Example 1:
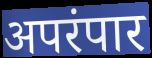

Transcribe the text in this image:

अपरंपार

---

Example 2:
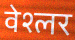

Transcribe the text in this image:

वेश्लर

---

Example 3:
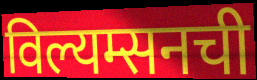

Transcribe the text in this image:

विल्यम्सनची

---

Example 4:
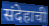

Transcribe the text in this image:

संदेहाची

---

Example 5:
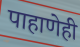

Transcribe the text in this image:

पाहाणेही